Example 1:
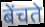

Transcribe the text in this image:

बेंचते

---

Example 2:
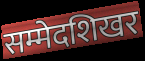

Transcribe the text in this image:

सम्मेदशिखर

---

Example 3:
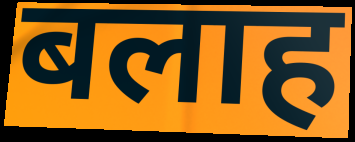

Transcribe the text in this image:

बलाह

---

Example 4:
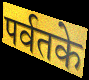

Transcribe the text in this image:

पर्वतके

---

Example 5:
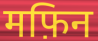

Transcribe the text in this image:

मफ़िन